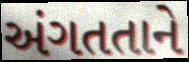
અંગતતાને